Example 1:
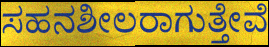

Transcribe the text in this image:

ಸಹನಶೀಲರಾಗುತ್ತೇವೆ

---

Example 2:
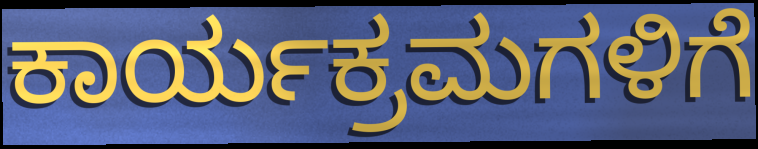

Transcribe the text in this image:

ಕಾರ್ಯಕ್ರಮಗಳಿಗೆ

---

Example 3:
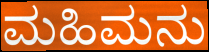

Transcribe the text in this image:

ಮಹಿಮನು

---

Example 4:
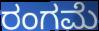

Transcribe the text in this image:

ರಂಗಮೆ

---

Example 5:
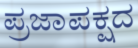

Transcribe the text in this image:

ಪ್ರಜಾಪಕ್ಷದ